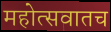
महोत्सवातच